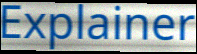
Explainer